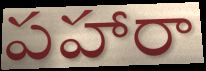
పహారా